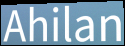
Ahilan